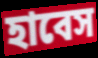
হাবেস